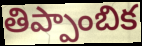
తిప్పాంబిక